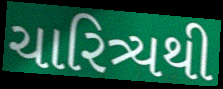
ચારિત્ર્યથી